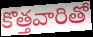
కొత్తవారితో